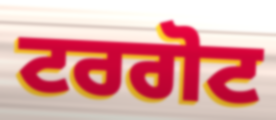
ਟਰਗੋਟ